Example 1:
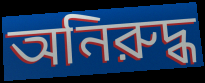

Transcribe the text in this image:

অনিরুদ্ধ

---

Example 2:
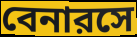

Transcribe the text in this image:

বেনারসে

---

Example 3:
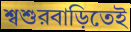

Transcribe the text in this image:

শ্বশুরবাড়িতেই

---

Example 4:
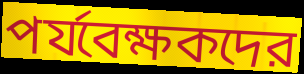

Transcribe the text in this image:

পর্যবেক্ষকদের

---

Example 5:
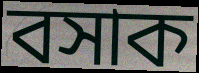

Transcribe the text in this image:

বসাক